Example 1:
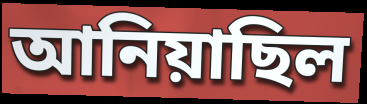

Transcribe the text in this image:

আনিয়াছিল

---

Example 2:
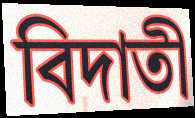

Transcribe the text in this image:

বিদাতী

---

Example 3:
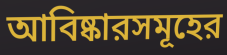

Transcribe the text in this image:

আবিষ্কারসমূহের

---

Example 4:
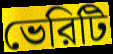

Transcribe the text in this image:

ভেরিটি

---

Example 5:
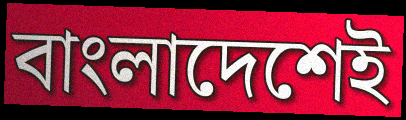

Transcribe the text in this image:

বাংলাদেশেই